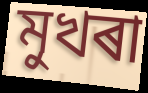
মুখৰা